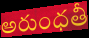
అరుంధతీ